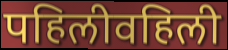
पहिलीवहिली